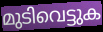
മുടിവെട്ടുക